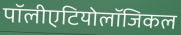
पॉलीएटियोलॉजिकल